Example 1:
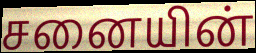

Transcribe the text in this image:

சனையின்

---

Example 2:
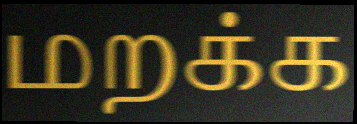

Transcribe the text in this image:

மறக்க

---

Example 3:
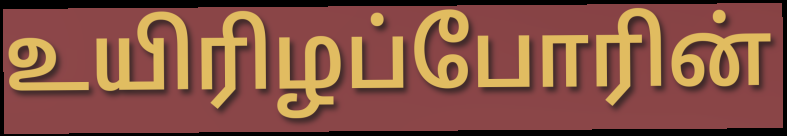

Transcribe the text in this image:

உயிரிழப்போரின்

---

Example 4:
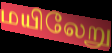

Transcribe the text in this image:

மயிலேறு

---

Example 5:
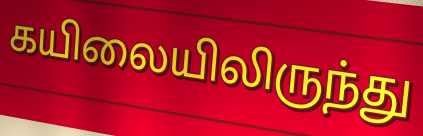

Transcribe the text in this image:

கயிலையிலிருந்து